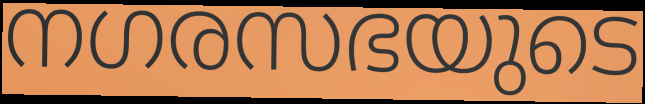
നഗരസഭയുടെ